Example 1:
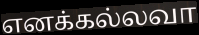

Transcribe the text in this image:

எனக்கல்லவா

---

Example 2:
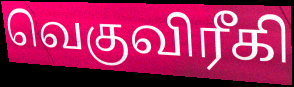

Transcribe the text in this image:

வெகுவிரீகி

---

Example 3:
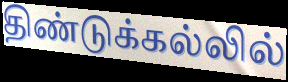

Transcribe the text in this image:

திண்டுக்கல்லில்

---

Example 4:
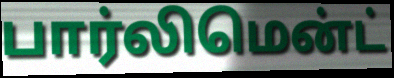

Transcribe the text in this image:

பார்லிமென்ட்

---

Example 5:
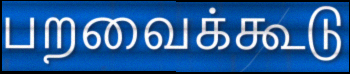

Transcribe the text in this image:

பறவைக்கூடு